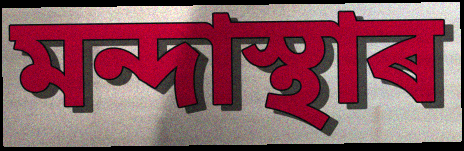
মন্দাস্থাৰ